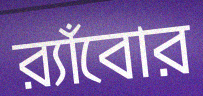
র‍্যাঁবোর